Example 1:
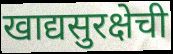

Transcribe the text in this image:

खाद्यसुरक्षेची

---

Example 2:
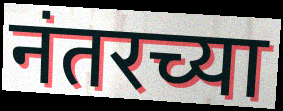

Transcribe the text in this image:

नंतरच्या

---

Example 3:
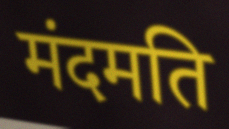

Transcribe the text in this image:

मंदमति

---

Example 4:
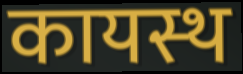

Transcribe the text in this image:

कायस्थ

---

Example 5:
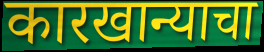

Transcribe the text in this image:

कारखान्याचा